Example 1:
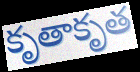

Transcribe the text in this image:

కృతాకృత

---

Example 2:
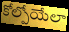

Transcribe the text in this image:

కోల్పోయేలా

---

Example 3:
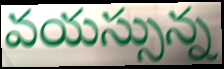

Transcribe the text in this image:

వయస్సున్న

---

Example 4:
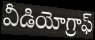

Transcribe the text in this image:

వీడియోగ్రాఫ్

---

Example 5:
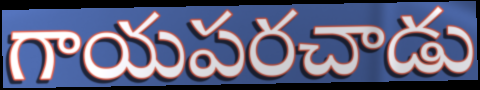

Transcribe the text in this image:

గాయపరచాడు